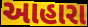
આહારા